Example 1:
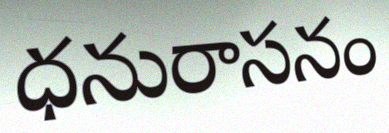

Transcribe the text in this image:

ధనురాసనం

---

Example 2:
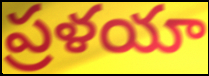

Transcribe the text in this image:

ప్రళయా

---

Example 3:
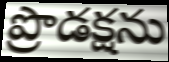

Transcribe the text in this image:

ప్రొడక్షను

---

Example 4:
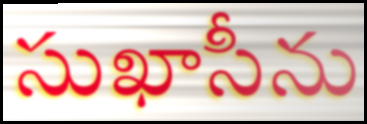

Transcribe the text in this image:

సుఖాసీను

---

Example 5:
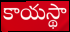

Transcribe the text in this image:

కాయస్థా